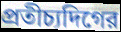
প্রতীচ্যদিগের